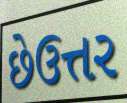
છેઉત્તર